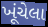
ખૂંચેલા